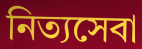
নিত্যসেবা